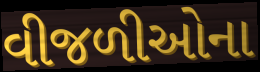
વીજળીઓના